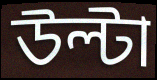
উল্টা